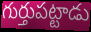
గుర్తుపట్టాడు